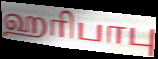
ஹரிபாபு